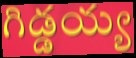
గిడ్డయ్య